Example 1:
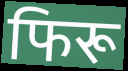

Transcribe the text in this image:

फिरू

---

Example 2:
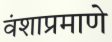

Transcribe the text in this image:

वंशाप्रमाणे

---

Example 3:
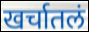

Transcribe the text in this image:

खर्चातलं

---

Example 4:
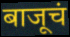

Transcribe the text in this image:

बाजूचं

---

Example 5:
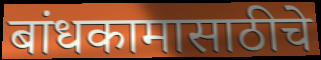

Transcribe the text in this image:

बांधकामासाठीचे